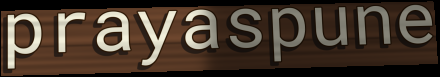
prayaspune